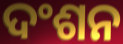
ଦଂଶନ